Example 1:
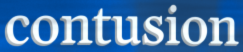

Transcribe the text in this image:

contusion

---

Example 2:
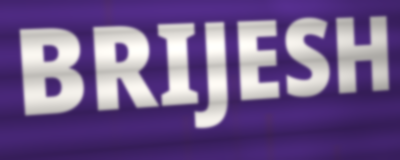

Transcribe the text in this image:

BRIJESH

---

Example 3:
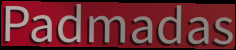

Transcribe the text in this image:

Padmadas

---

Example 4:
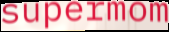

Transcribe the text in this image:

supermom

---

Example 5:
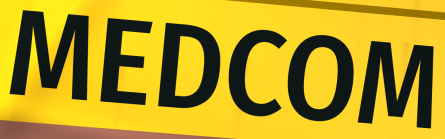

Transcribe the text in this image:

MEDCOM